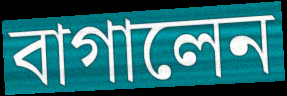
বাগালেন